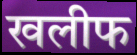
खलीफ